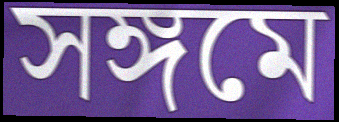
সঙ্গমে